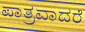
ಪಾತ್ರವಾದರೆ